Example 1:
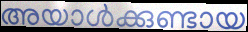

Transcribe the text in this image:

അയാൾക്കുണ്ടായ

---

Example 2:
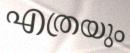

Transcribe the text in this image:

എത്രയും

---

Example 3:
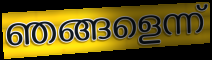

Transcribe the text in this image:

ഞങ്ങളെന്ന്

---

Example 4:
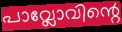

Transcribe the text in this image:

പാവ്ലോവിന്റെ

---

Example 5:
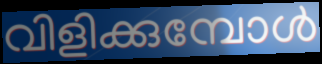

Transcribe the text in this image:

വിളിക്കുമ്പോൾ